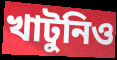
খাটুনিও